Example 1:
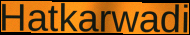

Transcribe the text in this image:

Hatkarwadi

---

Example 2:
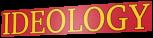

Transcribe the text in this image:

IDEOLOGY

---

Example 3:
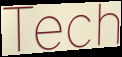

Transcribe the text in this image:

Tech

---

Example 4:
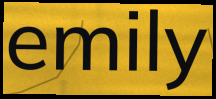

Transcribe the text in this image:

emily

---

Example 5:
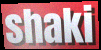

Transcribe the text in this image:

shaki